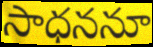
సాధననూ